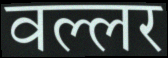
वल्लर